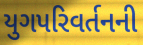
યુગપરિવર્તનની